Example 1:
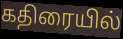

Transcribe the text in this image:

கதிரையில்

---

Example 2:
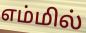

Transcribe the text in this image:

எம்மில்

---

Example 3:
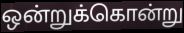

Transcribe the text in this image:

ஒன்றுக்கொன்று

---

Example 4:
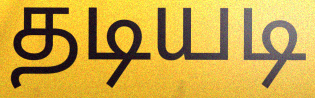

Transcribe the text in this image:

தடியடி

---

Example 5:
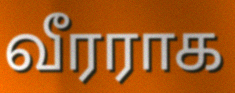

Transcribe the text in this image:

வீரராக